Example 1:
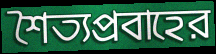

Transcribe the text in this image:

শৈত্যপ্রবাহের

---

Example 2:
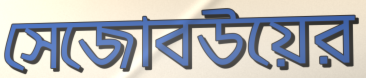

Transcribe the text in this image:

সেজোবউয়ের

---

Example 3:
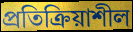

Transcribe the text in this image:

প্রতিক্রিয়াশীল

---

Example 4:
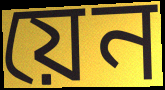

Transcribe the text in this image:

য়েন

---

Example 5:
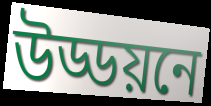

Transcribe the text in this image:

উড্ডয়নে